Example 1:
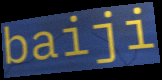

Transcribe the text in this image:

baiji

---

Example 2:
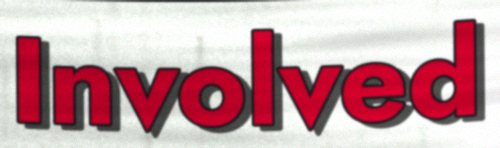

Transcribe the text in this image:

Involved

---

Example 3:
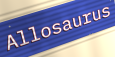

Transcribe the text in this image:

Allosaurus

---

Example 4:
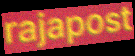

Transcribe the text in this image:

rajapost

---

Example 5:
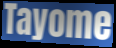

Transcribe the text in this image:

Tayome